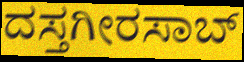
ದಸ್ತಗೀರಸಾಬ್